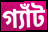
গ্যাঁট